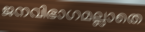
ജനവിഭാഗമല്ലാതെ